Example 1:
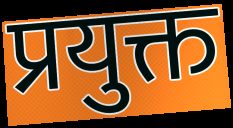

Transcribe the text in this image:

प्रयुक्त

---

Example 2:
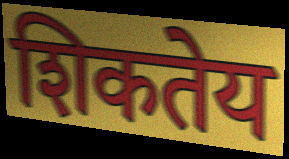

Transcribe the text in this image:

शिकतेय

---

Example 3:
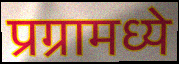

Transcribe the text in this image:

प्रग्रामध्ये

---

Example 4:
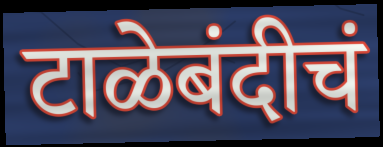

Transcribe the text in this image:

टाळेबंदीचं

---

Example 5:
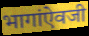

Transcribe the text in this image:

भागांऐवजी